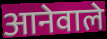
आनेवाले